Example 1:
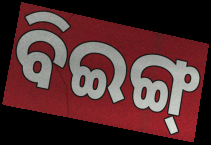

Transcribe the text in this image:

ବିଇଙ୍ଗ୍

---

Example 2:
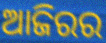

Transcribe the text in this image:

ଆଜିରର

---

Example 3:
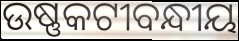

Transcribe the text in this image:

ଉଷ୍ଣକଟୀବନ୍ଧୀୟ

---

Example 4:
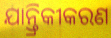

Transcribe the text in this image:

ଯାନ୍ତ୍ରିକୀକରଣ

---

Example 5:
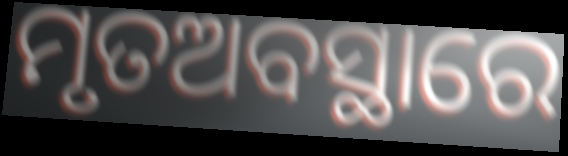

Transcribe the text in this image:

ମୃତଅବସ୍ଥାରେ